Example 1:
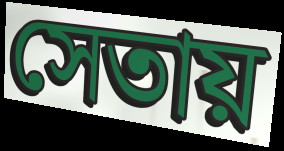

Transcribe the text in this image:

সেতায়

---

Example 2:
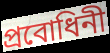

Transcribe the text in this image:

প্রবোধিনী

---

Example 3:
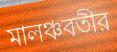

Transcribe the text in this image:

মালঞ্চবতীর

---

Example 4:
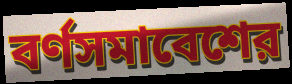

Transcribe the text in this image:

বর্ণসমাবেশের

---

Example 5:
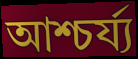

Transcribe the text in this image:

আশ্চর্য্য